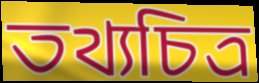
তথ্যচিত্র